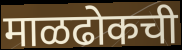
माळढोकची